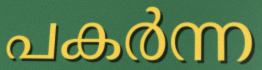
പകർന്ന